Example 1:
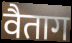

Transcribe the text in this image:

वैताग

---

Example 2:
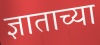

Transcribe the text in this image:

ज्ञाताच्या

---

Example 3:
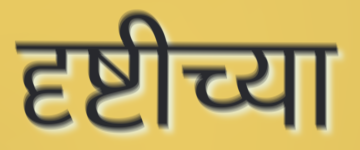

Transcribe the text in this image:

दृष्टीच्या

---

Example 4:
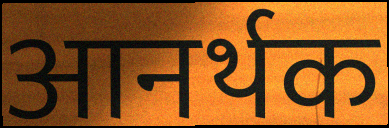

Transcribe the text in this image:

आनर्थक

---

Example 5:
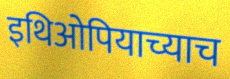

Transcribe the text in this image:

इथिओपियाच्याच